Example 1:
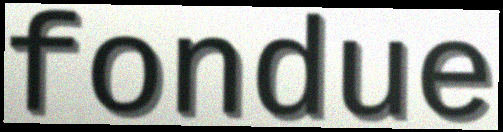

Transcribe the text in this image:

fondue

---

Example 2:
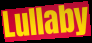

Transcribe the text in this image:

Lullaby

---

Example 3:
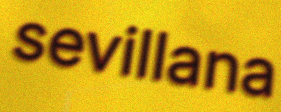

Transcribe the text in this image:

sevillana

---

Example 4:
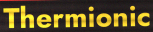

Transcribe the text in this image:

Thermionic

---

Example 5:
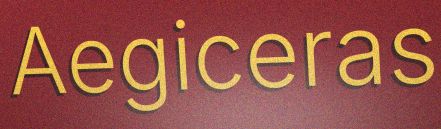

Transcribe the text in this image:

Aegiceras